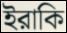
ইরাকি